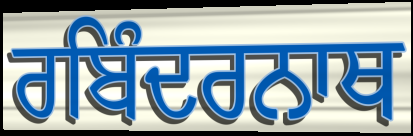
ਰਬਿੰਦਰਨਾਥ